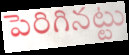
పెరిగినట్టు